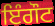
ਇੰਗੌਟ